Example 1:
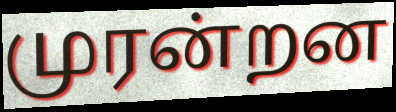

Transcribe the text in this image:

முரன்றன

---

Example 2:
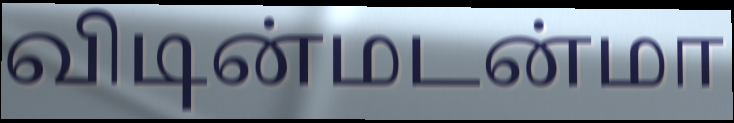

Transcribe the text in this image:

விடின்மடன்மா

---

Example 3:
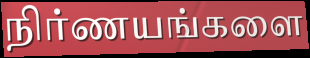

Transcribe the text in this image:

நிர்ணயங்களை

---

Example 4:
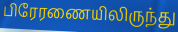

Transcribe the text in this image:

பிரேரணையிலிருந்து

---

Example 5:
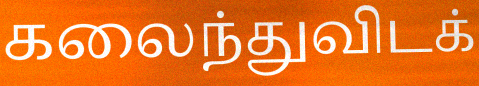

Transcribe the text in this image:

கலைந்துவிடக்